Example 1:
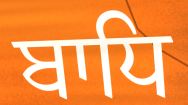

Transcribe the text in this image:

ਬਾਧਿ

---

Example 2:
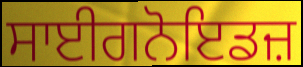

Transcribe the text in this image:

ਸਾਈਗਨੋਇਡਜ਼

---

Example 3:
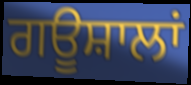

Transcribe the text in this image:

ਗਊਸ਼ਾਲਾਂ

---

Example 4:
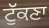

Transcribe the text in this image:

ਟੁੱਕਣਾ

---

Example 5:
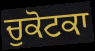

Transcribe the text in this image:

ਚੁਕੋਟਕਾ